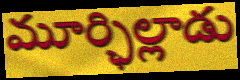
మూర్ఛిల్లాడు